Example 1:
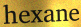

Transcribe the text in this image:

hexane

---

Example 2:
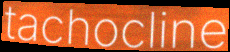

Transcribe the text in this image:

tachocline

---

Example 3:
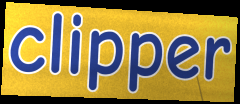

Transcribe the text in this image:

clipper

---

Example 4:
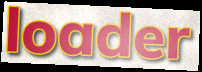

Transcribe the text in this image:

loader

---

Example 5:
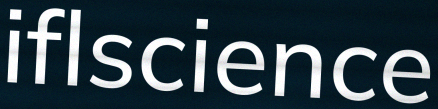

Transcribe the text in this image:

iflscience